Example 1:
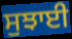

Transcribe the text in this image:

ਸੁਝਾਈ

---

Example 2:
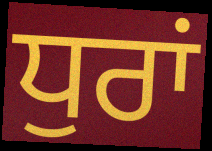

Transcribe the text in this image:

ਧੁਰਾਂ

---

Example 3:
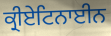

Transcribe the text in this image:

ਕ੍ਰੀਏਟਿਨਾਈਨ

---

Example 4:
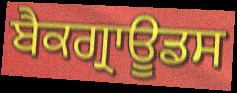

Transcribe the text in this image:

ਬੈਕਗ੍ਰਾਊਡਸ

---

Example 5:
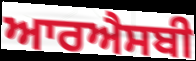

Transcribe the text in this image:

ਆਰਐਸਬੀ